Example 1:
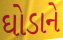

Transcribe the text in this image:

ઘોડાને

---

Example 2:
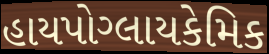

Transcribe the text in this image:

હાયપોગ્લાયકેમિક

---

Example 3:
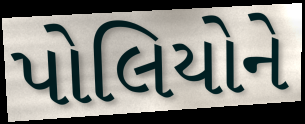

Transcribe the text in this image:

પોલિયોને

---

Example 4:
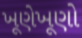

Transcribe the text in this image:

ખૂણેખૂણો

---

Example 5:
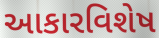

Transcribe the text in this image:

આકારવિશેષ